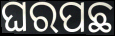
ଘରପଛ